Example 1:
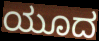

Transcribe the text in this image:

ಯೂದ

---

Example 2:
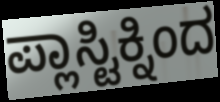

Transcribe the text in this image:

ಪ್ಲಾಸ್ಟಿಕ್ನಿಂದ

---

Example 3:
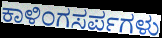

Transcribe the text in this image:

ಕಾಳಿಂಗಸರ್ಪಗಳು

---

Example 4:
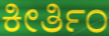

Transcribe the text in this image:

ಕೀರ್ತಿಂ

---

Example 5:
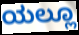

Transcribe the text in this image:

ಯಲ್ಲೂ